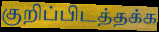
குறிப்பிடத்தக்க